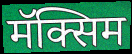
मॅक्सिम